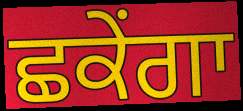
ਛਕੇਂਗਾ